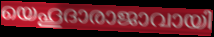
യെഹൂദാരാജാവായി